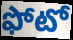
ఫోటో